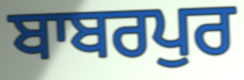
ਬਾਬਰਪੁਰ